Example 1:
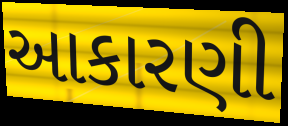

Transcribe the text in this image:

આકારણી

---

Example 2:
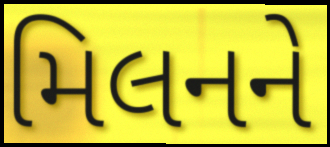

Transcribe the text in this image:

મિલનને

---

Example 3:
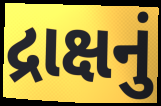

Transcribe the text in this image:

દ્રાક્ષનું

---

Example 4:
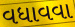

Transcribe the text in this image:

વધાવવા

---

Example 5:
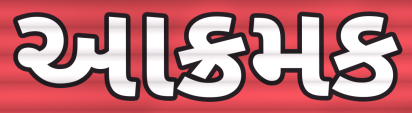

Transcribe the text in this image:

આક્રમક